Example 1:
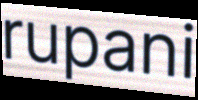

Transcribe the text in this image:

rupani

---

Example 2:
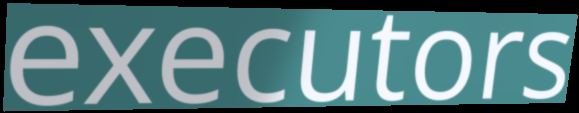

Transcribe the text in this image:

executors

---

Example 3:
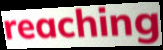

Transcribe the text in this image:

reaching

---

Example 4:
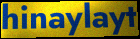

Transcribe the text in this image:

hinaylayt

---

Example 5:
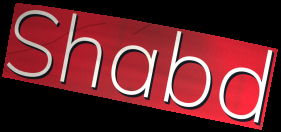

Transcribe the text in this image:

Shabd